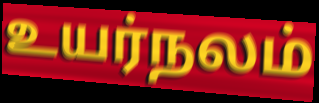
உயர்நலம்